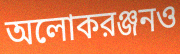
অলোকরঞ্জনও